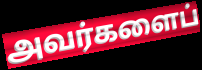
அவர்களைப்